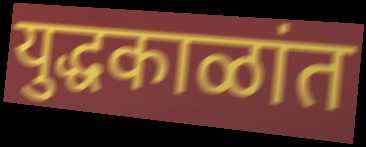
युद्धकाळांत